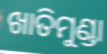
ଖାତିମୁଣ୍ଡା